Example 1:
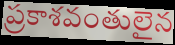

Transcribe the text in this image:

ప్రకాశవంతులైన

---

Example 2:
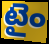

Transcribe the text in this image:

టైం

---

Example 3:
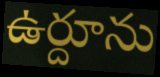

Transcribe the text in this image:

ఉర్దూను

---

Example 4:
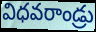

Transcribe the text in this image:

విధవరాండ్రు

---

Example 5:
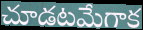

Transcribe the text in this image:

చూడటమేగాక